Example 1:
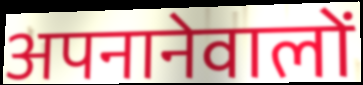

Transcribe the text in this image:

अपनानेवालों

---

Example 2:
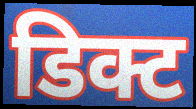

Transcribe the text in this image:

डिक्ट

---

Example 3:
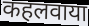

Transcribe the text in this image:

कहलवाया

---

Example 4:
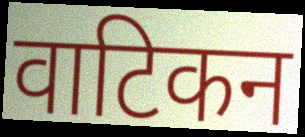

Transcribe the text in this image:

वाटिकन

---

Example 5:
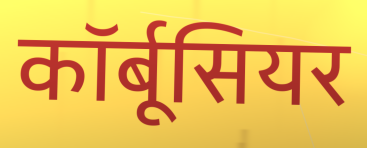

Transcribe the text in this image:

कॉर्बूसियर